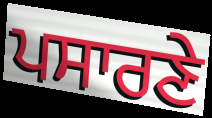
ਪਸਾਰਣੇ